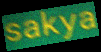
sakya